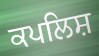
ਕਪਲਿਸ਼